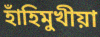
হাঁহিমুখীয়া